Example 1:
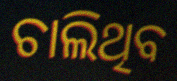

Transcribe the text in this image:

ଚାଲିଥିବ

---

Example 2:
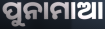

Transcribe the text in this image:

ପୁନାମାଆ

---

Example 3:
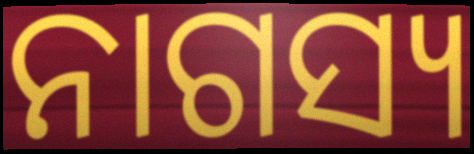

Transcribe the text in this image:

ନାଗସ୍ୟ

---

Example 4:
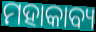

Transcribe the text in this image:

ମହାକାବ୍ୟ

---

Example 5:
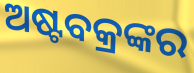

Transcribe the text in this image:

ଅଷ୍ଟବକ୍ରଙ୍କର